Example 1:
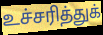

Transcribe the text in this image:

உச்சரித்துக்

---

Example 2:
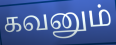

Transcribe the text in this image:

கவனும்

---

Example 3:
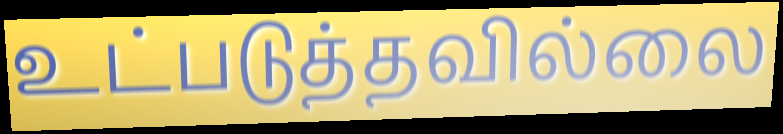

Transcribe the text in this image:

உட்படுத்தவில்லை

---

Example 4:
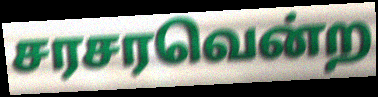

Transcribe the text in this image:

சரசரவென்ற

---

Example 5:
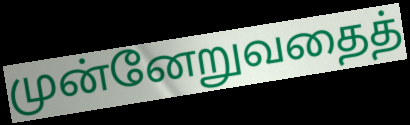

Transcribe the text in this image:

முன்னேறுவதைத்